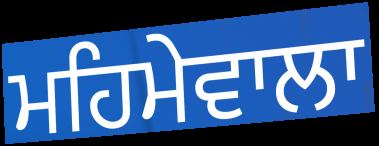
ਮਹਿਮੇਵਾਲਾ